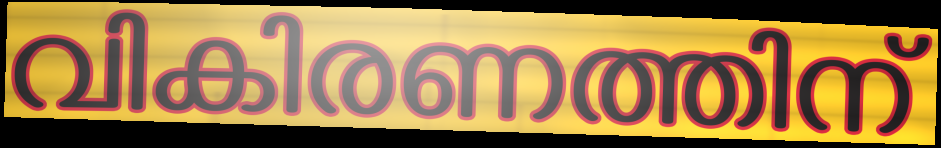
വികിരണത്തിന്